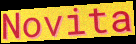
Novita